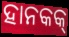
ହାନକକ୍